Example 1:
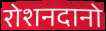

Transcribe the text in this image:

रोशनदानो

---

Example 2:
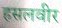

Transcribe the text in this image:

हसलवीर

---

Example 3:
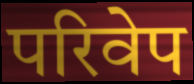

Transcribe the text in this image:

परिवेप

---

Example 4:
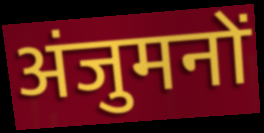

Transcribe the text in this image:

अंजुमनों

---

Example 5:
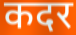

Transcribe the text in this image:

कदर